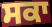
ਸਕਾ